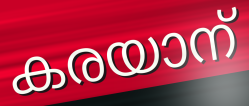
കരയാന്